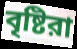
বৃষ্টিরা